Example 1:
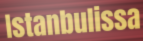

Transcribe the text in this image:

Istanbulissa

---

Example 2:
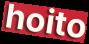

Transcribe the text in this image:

hoito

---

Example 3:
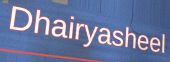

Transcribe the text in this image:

Dhairyasheel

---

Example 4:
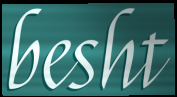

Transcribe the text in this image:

besht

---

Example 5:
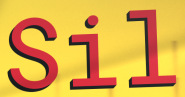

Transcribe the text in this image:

Sil